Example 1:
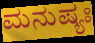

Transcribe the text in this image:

ಮನುಷ್ಯಃ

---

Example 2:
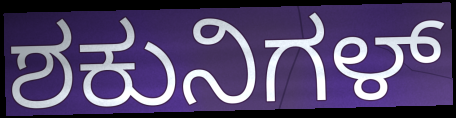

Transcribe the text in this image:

ಶಕುನಿಗಳ್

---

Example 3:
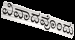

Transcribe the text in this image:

ವಿವಾದವೊಂದು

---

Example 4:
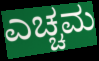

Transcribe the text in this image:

ಎಚ್ಚಮ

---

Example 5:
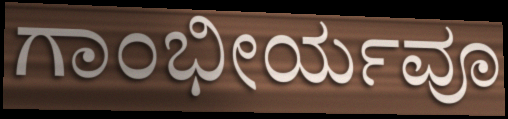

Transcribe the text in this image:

ಗಾಂಭೀರ್ಯವೂ